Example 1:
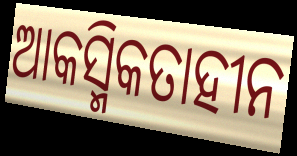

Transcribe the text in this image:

ଆକସ୍ମିକତାହୀନ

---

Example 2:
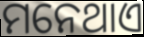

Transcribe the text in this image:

ମନେଥାଏ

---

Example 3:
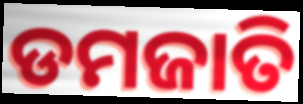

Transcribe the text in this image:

ଡମଜାତି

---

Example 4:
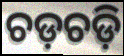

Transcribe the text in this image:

ଚଡ଼ଚଡ଼ି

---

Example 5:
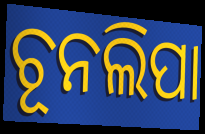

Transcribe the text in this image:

ଚୂନଲିପା